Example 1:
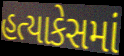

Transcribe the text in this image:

હત્યાકેસમાં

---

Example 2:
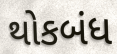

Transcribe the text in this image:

થોકબંધ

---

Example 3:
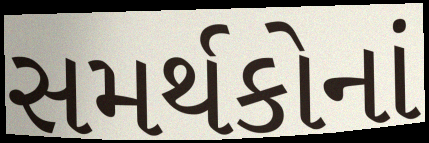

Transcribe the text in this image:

સમર્થકોનાં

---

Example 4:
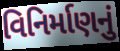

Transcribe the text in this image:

વિનિર્માણનું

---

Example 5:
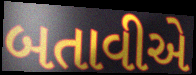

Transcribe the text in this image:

બતાવીએ